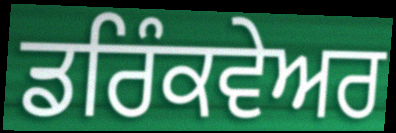
ਡਰਿੰਕਵੇਅਰ